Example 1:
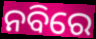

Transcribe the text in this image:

ନବିରେ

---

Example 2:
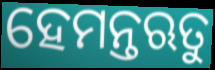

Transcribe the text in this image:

ହେମନ୍ତଋତୁ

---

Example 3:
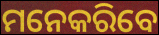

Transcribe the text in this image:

ମନେକରିବେ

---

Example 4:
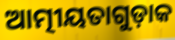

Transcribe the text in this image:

ଆତ୍ମୀୟତାଗୁଡ଼ାକ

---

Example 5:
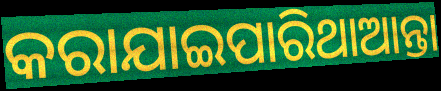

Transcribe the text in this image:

କରାଯାଇପାରିଥାଆନ୍ତା